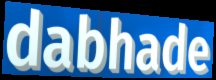
dabhade